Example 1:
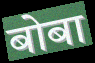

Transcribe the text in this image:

बोबा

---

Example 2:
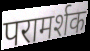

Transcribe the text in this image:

परामर्शक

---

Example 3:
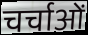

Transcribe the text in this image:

चर्चाओं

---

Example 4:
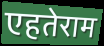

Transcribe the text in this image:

एहतेराम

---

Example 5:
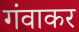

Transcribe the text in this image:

गंवाकर